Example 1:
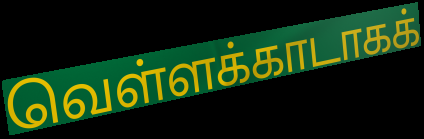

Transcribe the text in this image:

வெள்ளக்காடாகக்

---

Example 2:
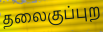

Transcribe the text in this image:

தலைகுப்புற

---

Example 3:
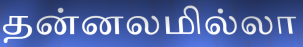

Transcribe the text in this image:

தன்னலமில்லா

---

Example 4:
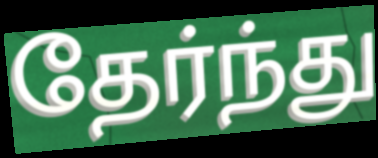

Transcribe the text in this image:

தேர்ந்து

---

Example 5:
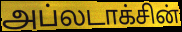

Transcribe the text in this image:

அப்லடாக்சின்